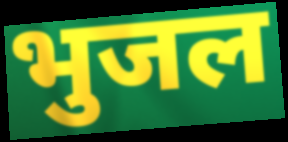
भुजल